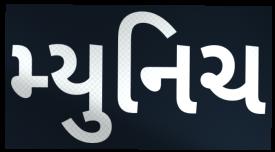
મ્યુનિચ